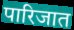
पारिजात